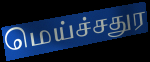
மெய்ச்சதுர